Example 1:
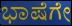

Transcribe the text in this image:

ಭಾಷೆಗೇ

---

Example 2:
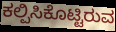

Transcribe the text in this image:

ಕಲ್ಪಿಸಿಕೊಟ್ಟಿರುವ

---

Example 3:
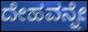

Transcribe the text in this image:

ದೇಹವನ್ನೇ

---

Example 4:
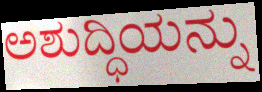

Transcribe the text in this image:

ಅಶುದ್ಧಿಯನ್ನು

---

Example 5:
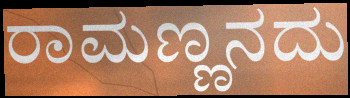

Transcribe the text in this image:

ರಾಮಣ್ಣನದು